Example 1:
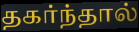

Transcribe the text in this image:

தகர்ந்தால்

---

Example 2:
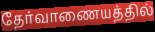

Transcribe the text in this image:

தேர்வாணையத்தில்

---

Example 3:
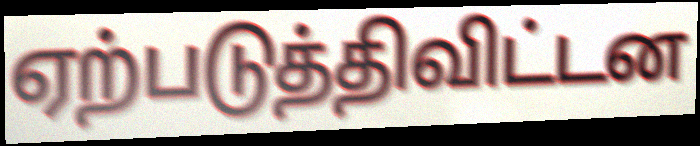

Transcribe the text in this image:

ஏற்படுத்திவிட்டன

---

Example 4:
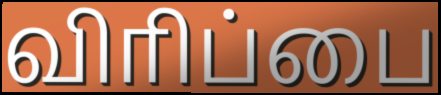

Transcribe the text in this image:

விரிப்பை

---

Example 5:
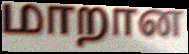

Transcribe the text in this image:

மாறான